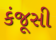
કંજૂસી